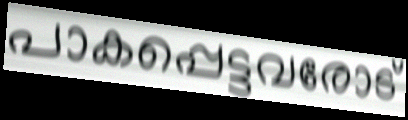
പാകപ്പെട്ടവരോട്